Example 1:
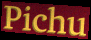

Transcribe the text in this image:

Pichu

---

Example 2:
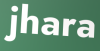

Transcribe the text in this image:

jhara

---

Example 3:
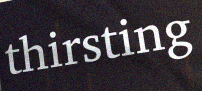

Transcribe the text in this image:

thirsting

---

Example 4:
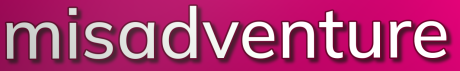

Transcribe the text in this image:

misadventure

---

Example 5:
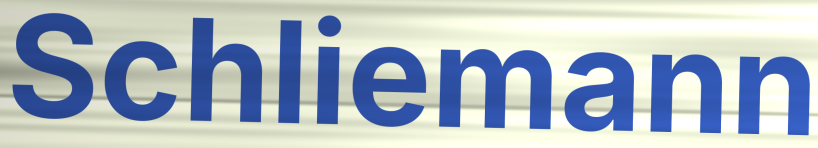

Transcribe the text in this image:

Schliemann